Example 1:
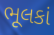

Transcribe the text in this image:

ભૂલકાં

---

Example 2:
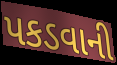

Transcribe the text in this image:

પકડવાની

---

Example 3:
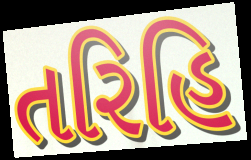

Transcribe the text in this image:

તરિહિ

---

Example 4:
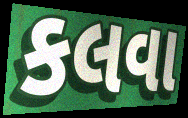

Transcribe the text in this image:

કલવા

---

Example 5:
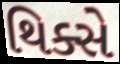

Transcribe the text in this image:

થિક્સે